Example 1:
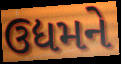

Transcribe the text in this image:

ઉદ્યમને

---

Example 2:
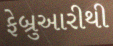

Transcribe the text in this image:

ફેબ્રુઆરીથી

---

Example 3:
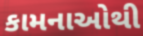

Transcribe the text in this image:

કામનાઓથી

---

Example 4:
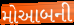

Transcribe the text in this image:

મોઆબની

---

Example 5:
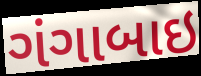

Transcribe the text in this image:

ગંગાબાઇ